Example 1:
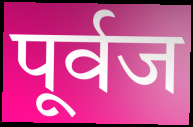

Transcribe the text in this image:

पूर्वज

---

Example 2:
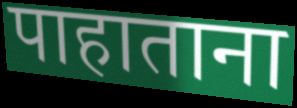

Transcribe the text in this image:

पाहाताना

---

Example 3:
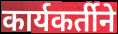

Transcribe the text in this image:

कार्यकर्तीने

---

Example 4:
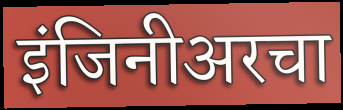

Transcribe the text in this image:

इंजिनीअरचा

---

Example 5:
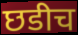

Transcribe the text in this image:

छडीच